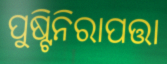
ପୁଷ୍ଟିନିରାପତ୍ତା